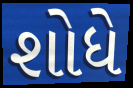
શોધે